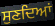
ਸੁਣਦਿਆਂ